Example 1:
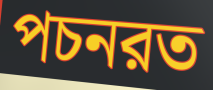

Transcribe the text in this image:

পচনরত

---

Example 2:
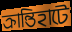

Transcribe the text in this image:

ক্রান্তিহাটে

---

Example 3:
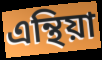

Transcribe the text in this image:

এন্থিয়া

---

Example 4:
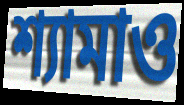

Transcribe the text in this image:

শ্যামাও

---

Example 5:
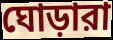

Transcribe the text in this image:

ঘোড়ারা